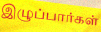
இழுப்பார்கள்